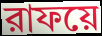
রাফয়ে